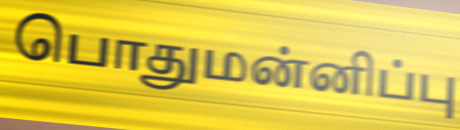
பொதுமன்னிப்பு